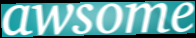
awsome